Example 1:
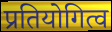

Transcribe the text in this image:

प्रतियोगित्व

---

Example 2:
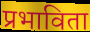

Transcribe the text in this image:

प्रभाविता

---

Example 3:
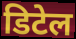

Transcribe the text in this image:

डिटेल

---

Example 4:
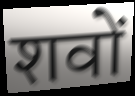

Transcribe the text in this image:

शवों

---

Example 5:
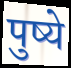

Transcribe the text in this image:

पुष्ये